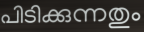
പിടിക്കുന്നതും